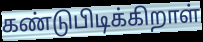
கண்டுபிடிக்கிறாள்